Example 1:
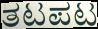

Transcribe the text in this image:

ತಟಪಟ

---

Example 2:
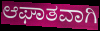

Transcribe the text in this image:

ಆಘಾತವಾಗಿ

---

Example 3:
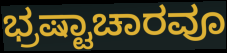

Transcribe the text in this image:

ಭ್ರಷ್ಟಾಚಾರವೂ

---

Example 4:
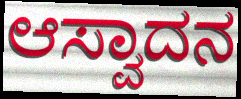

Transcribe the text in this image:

ಆಸ್ವಾದನ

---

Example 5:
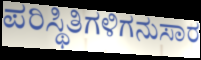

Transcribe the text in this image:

ಪರಿಸ್ಥಿತಿಗಳಿಗನುಸಾರ